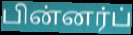
பின்னர்ப்